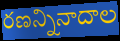
రణన్నినాదాల